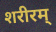
शरीरम्